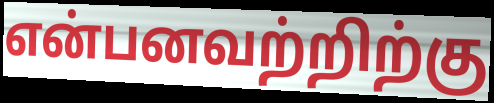
என்பனவற்றிற்கு